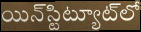
యిన్‌స్టిట్యూట్‌లో